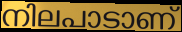
നിലപാടാണ്